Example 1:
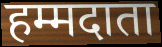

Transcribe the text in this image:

हम्मदाता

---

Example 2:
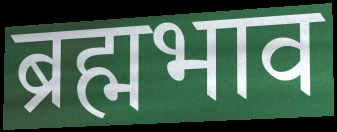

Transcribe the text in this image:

ब्रह्मभाव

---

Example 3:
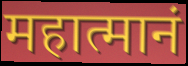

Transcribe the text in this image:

महात्मानं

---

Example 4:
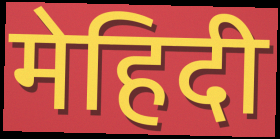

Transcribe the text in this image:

मेहिदी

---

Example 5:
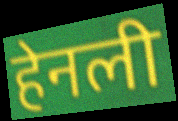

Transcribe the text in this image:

हेनली